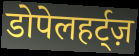
डोपेलहर्ट्ज़